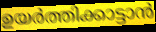
ഉയർത്തിക്കാട്ടാൻ